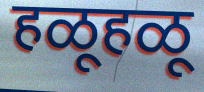
हळूहळू